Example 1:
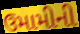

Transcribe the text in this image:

ઉમામીની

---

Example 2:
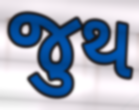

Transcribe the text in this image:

જુથ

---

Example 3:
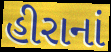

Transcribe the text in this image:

હીરાનાં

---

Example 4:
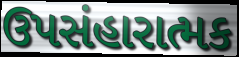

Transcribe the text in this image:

ઉપસંહારાત્મક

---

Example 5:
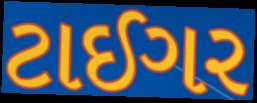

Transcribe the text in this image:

ટાઈગર